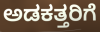
ಅಡಕತ್ತರಿಗೆ